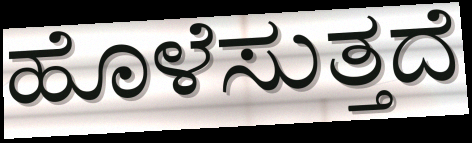
ಹೊಳೆಸುತ್ತದೆ